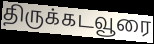
திருக்கடவூரை